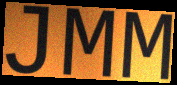
JMM